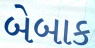
બેબાક